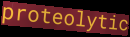
proteolytic